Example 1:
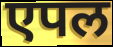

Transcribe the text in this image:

एपल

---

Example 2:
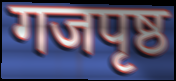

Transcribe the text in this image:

गजपृष्ठ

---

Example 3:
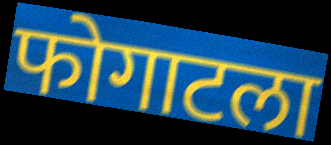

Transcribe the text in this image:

फोगाटला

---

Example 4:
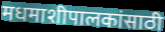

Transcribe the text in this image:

मधमाशीपालकांसाठी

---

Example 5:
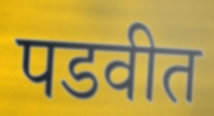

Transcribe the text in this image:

पडवीत